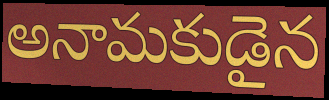
అనామకుడైన